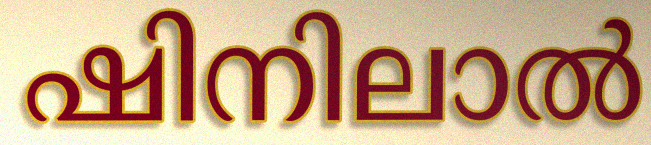
ഷിനിലാൽ